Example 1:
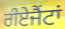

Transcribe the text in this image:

ਰੀਏਜੈਂਟਾਂ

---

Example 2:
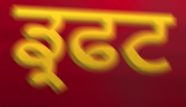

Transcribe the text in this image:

ਡ੍ਰਫਟ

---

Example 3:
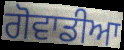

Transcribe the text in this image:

ਗੋਵਾਡੀਆ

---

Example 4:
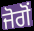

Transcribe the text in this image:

ਜੋਗੋਂ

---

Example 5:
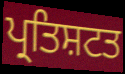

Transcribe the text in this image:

ਪ੍ਰਤਿਸ਼ਟਤ